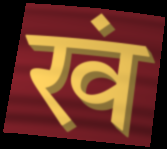
खं